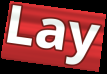
Lay